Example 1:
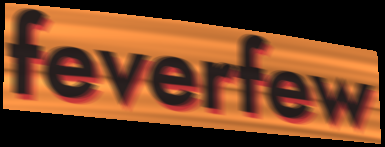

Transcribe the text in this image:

feverfew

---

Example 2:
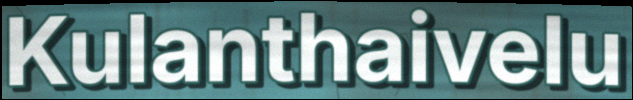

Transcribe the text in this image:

Kulanthaivelu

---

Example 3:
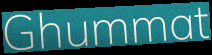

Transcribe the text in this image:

Ghummat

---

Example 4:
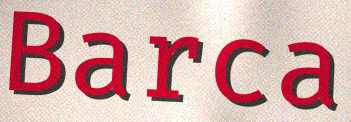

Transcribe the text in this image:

Barca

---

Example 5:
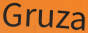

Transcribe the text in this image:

Gruza